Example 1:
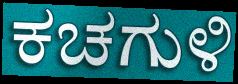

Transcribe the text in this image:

ಕಚಗುಳಿ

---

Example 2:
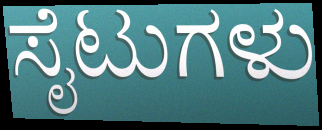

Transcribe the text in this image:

ಸೈಟುಗಳು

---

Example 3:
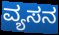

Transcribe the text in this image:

ವ್ಯಸನ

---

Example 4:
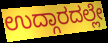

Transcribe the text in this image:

ಉದ್ಗಾರದಲ್ಲೇ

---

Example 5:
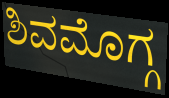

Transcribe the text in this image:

ಶಿವಮೊಗ್ಗ